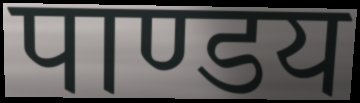
पाण्डय